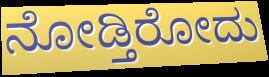
ನೋಡ್ತಿರೋದು